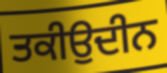
ਤਕੀਉਦੀਨ